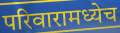
परिवारामध्येच